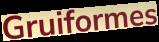
Gruiformes